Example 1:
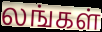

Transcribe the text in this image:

லங்கள்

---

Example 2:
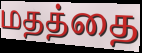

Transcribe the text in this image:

மதத்தை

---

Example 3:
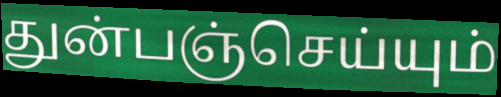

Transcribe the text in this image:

துன்பஞ்செய்யும்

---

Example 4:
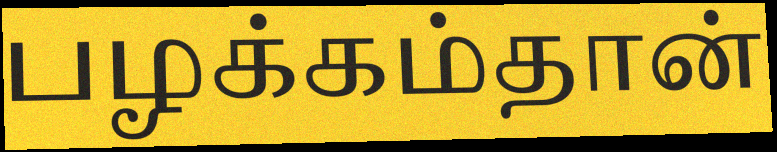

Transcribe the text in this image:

பழக்கம்தான்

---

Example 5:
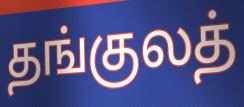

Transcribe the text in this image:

தங்குலத்